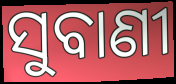
ସୁବାଣୀ